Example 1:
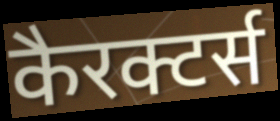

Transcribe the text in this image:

कैरक्टर्स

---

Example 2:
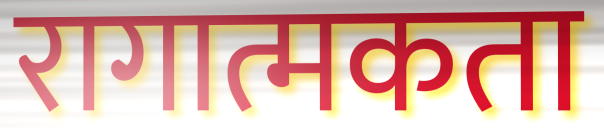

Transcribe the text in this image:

रागात्मकता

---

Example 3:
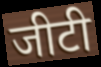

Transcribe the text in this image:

जीटी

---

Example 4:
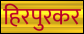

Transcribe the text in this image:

हिरपुरकर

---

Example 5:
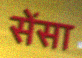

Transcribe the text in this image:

सेंसा